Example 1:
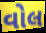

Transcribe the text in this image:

વોલ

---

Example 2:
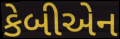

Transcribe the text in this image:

કેબીએન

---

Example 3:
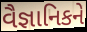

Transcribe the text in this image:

વૈજ્ઞાનિકને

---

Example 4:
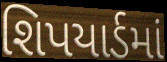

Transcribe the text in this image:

શિપયાર્ડમાં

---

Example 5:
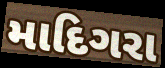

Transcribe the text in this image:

માદિગરા